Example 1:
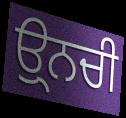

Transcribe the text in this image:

ਉ੍ਨਚੀ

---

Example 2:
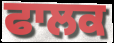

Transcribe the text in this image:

ਫਾਲਕ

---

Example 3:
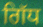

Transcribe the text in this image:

ਗਿੱਧ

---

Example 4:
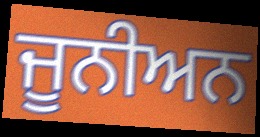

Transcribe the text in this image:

ਜੂਨੀਅਨ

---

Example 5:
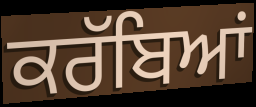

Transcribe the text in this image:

ਕਰੱਬਿਆਂ